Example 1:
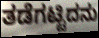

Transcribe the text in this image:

ತಡೆಗಟ್ಟಿದನು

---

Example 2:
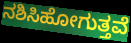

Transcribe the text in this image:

ನಶಿಸಿಹೋಗುತ್ತವೆ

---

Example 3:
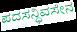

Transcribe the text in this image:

ಪದಸನ್ಧಿವಸೇನ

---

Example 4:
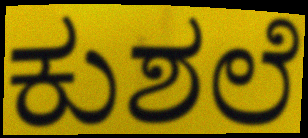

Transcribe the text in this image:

ಕುಶಲೆ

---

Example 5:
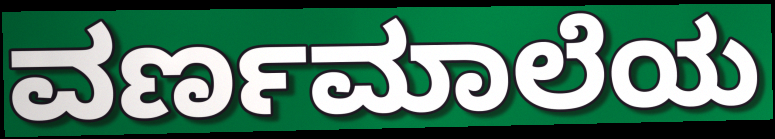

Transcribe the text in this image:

ವರ್ಣಮಾಲೆಯ